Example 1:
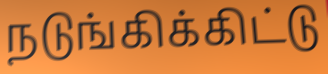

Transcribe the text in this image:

நடுங்கிக்கிட்டு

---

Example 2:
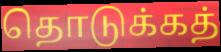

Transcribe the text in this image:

தொடுக்கத்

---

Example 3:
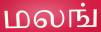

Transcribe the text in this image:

மலங்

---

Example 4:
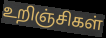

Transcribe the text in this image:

உறிஞ்சிகள்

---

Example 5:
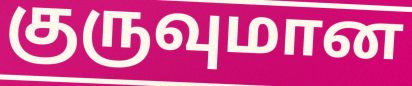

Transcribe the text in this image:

குருவுமான